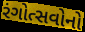
રંગોત્સવોનો